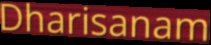
Dharisanam